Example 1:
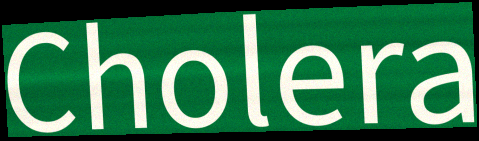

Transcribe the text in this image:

Cholera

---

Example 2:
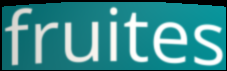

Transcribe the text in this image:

fruites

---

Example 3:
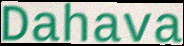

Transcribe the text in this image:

Dahava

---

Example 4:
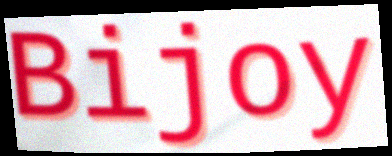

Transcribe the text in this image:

Bijoy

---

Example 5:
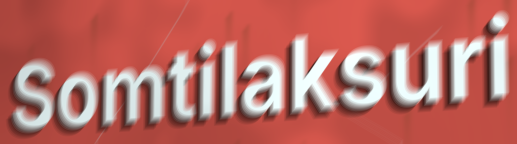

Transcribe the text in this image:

Somtilaksuri